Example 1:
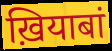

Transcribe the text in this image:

ख़ियाबां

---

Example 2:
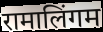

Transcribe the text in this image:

रामालिंगम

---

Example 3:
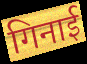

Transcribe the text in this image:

गिनाई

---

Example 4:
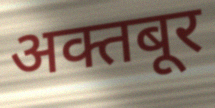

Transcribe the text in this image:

अक्तबूर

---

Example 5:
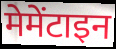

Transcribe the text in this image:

मेमेंटाइन